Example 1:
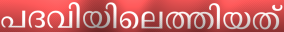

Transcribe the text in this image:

പദവിയിലെത്തിയത്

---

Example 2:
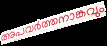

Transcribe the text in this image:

അപവർത്തനാങ്കവും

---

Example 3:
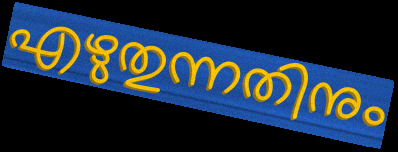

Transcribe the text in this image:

എഴുതുന്നതിനും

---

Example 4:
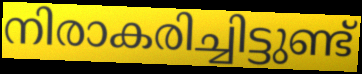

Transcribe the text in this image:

നിരാകരിച്ചിട്ടുണ്ട്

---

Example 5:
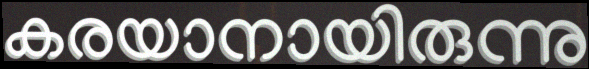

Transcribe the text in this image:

കരയാനായിരുന്നു